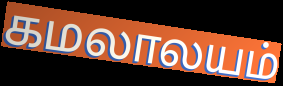
கமலாலயம்